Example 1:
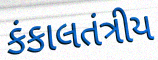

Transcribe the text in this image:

કંકાલતંત્રીય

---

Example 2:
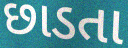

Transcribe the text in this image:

છાડતા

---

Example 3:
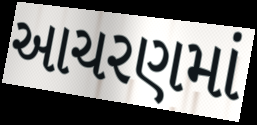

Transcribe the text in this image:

આચરણમાં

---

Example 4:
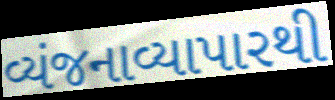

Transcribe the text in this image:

વ્યંજનાવ્યાપારથી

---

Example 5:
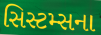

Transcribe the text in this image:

સિસ્ટમ્સના